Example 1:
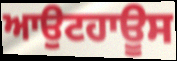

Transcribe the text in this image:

ਆਉਟਹਾਊਸ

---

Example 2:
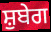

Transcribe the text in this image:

ਸ਼ੁਬੇਗ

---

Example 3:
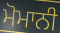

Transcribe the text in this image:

ਮੋਮਾਨੀ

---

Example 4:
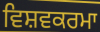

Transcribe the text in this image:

ਵਿਸ਼ਵਕਰਮਾ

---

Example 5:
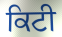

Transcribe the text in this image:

ਕਿਟੀ